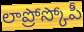
లాప్రోస్కోపీ